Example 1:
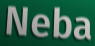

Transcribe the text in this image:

Neba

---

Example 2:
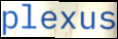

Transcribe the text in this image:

plexus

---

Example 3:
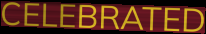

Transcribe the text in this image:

CELEBRATED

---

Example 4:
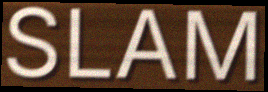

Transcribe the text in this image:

SLAM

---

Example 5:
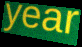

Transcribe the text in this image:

year